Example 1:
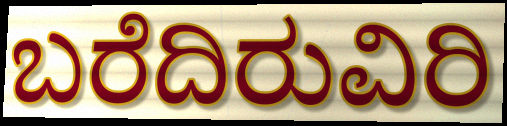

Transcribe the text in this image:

ಬರೆದಿರುವಿರಿ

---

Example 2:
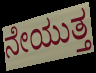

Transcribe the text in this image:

ನೇಯುತ್ತ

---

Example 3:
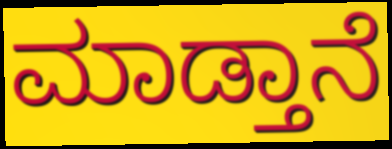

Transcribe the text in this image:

ಮಾಡ್ತಾನೆ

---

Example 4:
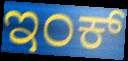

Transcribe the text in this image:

ಇಂಕ್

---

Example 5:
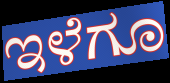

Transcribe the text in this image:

ಇಳೆಗೂ